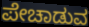
ಪೇಚಾಡುವ